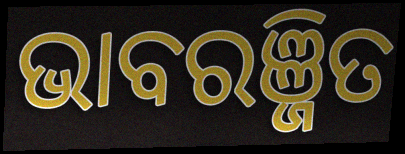
ଭାବରଞ୍ଜିତ